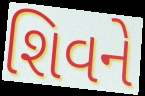
શિવને